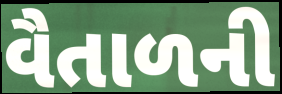
વૈતાળની